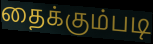
தைக்கும்படி